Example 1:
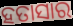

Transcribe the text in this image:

ହତାସାର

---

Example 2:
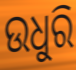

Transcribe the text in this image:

ଉଧୁରି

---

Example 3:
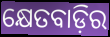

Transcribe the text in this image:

କ୍ଷେତବାଡ଼ିର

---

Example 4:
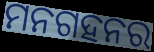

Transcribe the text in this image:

ମନଗହନର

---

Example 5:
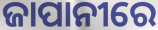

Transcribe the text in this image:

ଜାପାନୀରେ